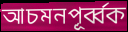
আচমনপূর্ব্বক